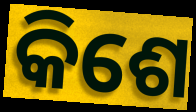
କିଶେ